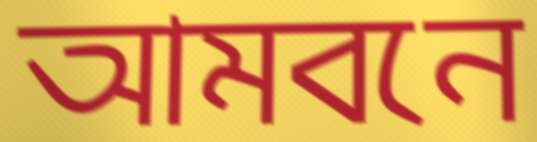
আমবনে